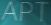
APT